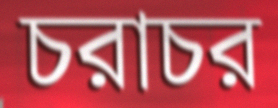
চরাচর